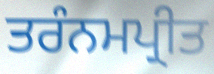
ਤਰੰਨਮਪ੍ਰੀਤ